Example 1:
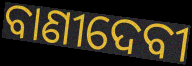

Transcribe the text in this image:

ବାଣୀଦେବୀ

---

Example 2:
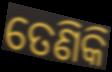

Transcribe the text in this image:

ତେଣିକି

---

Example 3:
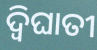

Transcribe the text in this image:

ଦ୍ବିଘାତୀ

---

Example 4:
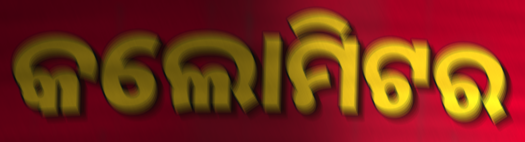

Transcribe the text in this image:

କଲୋମିଟର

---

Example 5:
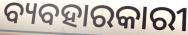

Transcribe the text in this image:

ବ୍ୟବହାରକାରୀ